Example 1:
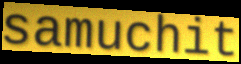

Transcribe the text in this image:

samuchit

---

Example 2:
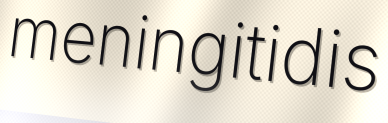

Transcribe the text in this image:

meningitidis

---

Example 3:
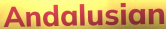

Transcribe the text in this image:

Andalusian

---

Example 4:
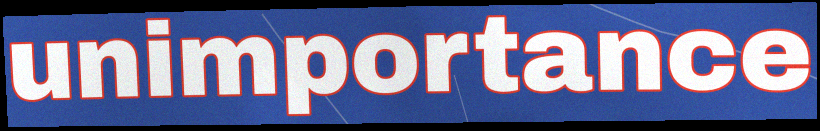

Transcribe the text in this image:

unimportance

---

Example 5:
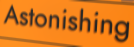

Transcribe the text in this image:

Astonishing